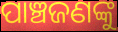
ପାଞ୍ଚଜଣଙ୍କୁ